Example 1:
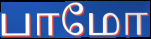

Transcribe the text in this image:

பாமோ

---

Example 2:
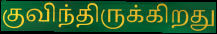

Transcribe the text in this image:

குவிந்திருக்கிறது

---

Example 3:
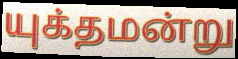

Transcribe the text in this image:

யுக்தமன்று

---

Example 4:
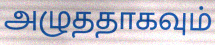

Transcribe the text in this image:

அழுததாகவும்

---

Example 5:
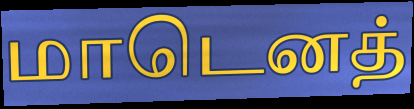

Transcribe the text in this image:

மாடெனத்